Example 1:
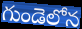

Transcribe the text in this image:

గుండెలోన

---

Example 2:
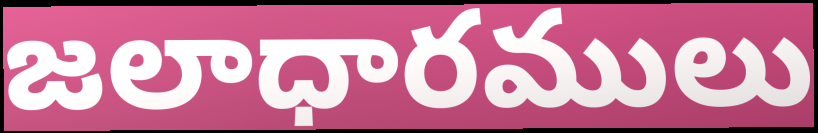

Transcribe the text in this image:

జలాధారములు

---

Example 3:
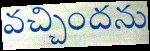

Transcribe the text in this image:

వచ్చిందను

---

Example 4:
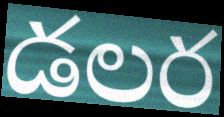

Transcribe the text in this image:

డలర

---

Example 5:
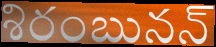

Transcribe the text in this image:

శిరంబునన్